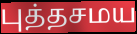
புத்தசமய